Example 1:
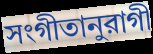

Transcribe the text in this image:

সংগীতানুরাগী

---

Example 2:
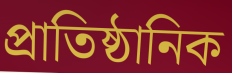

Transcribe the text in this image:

প্রাতিষ্ঠানিক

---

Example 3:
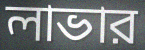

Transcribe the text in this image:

লাভার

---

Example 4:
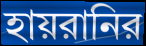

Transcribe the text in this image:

হায়রানির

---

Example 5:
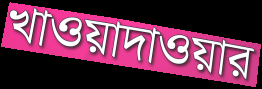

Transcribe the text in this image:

খাওয়াদাওয়ার